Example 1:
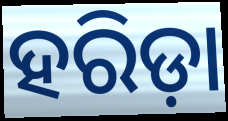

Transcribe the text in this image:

ହରିଡ଼ା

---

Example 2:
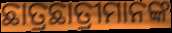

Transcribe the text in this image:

ଛାତ୍ରଛାତ୍ରୀମାନଙ୍କ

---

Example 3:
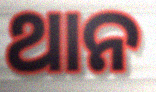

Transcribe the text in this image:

ଥାନ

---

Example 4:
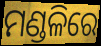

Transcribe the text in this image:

ମଣ୍ଡଳିରେ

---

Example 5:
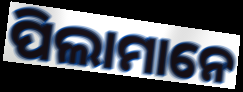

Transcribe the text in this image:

ପିଲାମାନେ